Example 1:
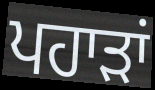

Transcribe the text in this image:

ਪਹਾੜਾਂ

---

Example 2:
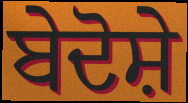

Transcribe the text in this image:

ਬੇਦੋਸ਼ੇ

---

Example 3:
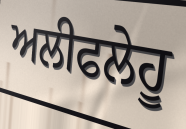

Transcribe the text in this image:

ਅਲੀਫਲੇਹੂ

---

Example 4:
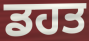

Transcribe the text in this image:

ਡਹਤ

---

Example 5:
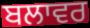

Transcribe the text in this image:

ਬਲਾਵਰ